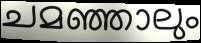
ചമഞ്ഞാലും